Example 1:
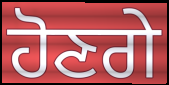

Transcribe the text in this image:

ਹੋਣਗੇ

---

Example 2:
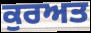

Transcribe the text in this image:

ਕੁਰਅਤ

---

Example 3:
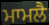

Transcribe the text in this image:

ਮਾਮਲੈ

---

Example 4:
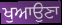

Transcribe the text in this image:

ਖੁਆਉਣਾ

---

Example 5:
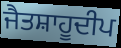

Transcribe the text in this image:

ਜੈਤਸ਼ਾਹੂਦੀਪ